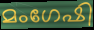
മംഗേഷി